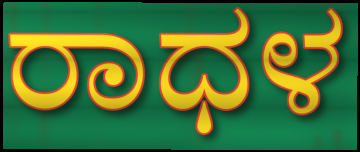
ರಾಧಳ